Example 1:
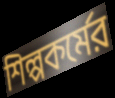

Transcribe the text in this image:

শিল্পকর্মের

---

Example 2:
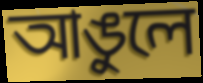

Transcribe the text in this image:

আঙুলে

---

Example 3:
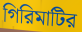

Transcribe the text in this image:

গিরিমাটির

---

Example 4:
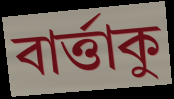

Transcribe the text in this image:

বার্ত্তাকু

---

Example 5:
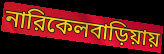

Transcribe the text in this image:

নারিকেলবাড়িয়ায়